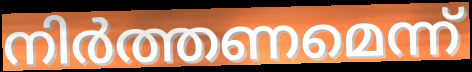
നിർത്തണമെന്ന്